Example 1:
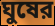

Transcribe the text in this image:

ঘুষের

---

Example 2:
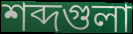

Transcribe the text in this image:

শব্দগুলা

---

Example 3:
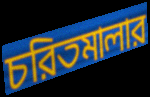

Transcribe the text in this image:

চরিতমালার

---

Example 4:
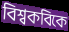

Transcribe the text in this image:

বিশ্বকবিকে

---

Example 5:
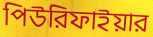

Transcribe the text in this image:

পিউরিফাইয়ার